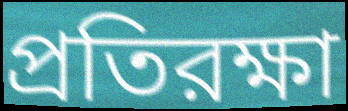
প্রতিরক্ষা